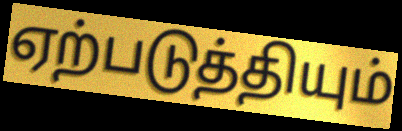
ஏற்படுத்தியும்